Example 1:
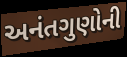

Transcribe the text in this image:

અનંતગુણોની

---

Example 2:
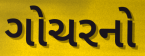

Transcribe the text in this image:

ગોચરનો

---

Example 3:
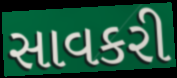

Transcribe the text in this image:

સાવકરી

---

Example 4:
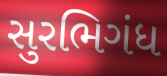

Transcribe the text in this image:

સુરભિગંધ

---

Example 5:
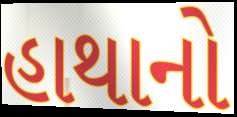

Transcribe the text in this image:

હાથાનો